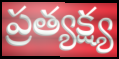
ప్రత్యక్ష్య